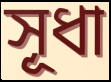
সূধা